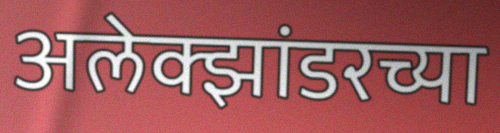
अलेक्झांडरच्या